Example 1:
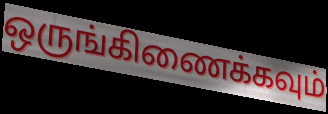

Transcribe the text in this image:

ஒருங்கிணைக்கவும்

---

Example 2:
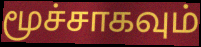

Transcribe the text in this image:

மூச்சாகவும்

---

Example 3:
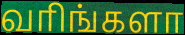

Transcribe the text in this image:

வரிங்களா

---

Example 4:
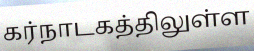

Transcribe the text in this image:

கர்நாடகத்திலுள்ள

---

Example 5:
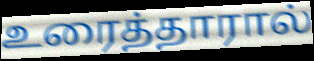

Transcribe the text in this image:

உரைத்தாரால்